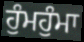
ਹੁੰਮਹੁੰਮਾ